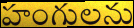
హంగులను